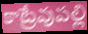
కాట్రేవుపల్లి